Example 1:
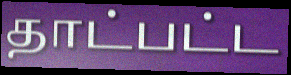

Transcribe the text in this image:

தாட்பட்ட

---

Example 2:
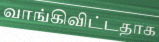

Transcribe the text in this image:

வாங்கிவிட்டதாக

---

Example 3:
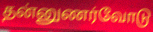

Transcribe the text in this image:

தன்னுணர்வோடு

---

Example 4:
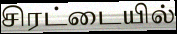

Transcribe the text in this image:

சிரட்டையில்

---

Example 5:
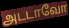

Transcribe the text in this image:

அடடாவோ